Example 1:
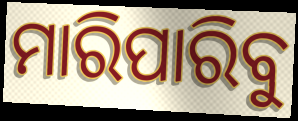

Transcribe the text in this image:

ମାରିପାରିବୁ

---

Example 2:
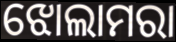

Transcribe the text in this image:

ଝୋଲାମରା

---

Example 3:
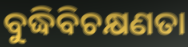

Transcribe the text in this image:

ବୁଦ୍ଧିବିଚକ୍ଷଣତା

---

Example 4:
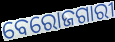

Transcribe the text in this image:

ବେରୋଜଗାରୀ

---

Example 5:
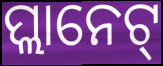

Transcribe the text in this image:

ପ୍ଲାନେଟ୍